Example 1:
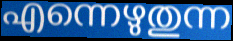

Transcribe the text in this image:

എന്നെഴുതുന്ന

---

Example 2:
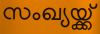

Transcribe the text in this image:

സംഖ്യയ്ക്ക്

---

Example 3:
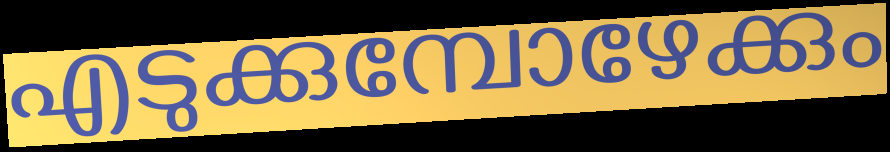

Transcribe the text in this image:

എടുക്കുമ്പോഴേക്കും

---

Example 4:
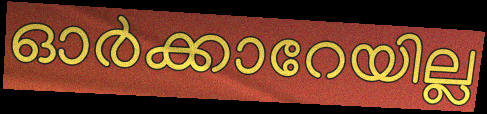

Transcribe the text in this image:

ഓർക്കാറേയില്ല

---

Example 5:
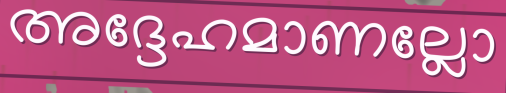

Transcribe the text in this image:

അദ്ദേഹമാണല്ലോ